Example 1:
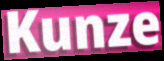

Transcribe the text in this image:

Kunze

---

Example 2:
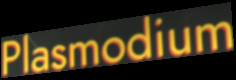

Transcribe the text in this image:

Plasmodium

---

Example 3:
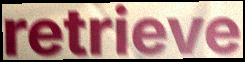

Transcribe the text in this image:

retrieve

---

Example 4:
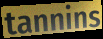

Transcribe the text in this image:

tannins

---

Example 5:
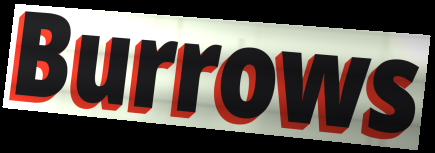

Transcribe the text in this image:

Burrows